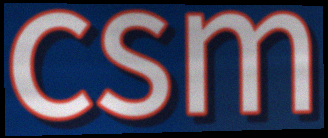
csm